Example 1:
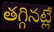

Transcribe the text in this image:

తగ్గినట్లే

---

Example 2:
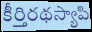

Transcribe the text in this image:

కీర్తిరథస్యాపి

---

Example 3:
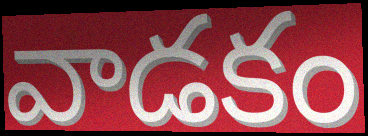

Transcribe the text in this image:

వాడకం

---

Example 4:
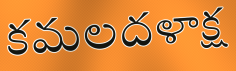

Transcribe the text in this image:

కమలదళాక్ష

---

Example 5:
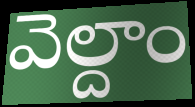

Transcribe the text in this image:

వెల్దాం